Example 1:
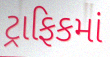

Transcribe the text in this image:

ટ્રાફિકમાં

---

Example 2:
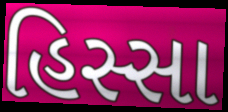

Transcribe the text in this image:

હિસ્સા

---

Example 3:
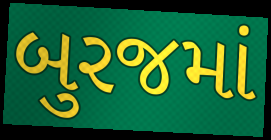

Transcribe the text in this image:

બુરજમાં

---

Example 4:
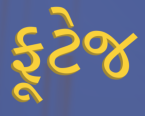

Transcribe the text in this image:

ફૂટેજ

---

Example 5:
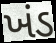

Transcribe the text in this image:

ખંડ